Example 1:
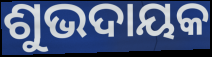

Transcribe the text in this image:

ଶୁଭଦାୟକ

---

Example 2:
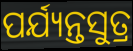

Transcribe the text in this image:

ପର୍ଯ୍ୟନ୍ତସୁତ୍ର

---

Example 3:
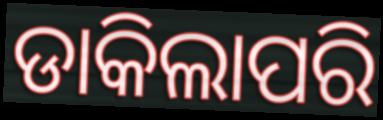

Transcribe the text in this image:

ଡାକିଲାପରି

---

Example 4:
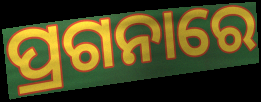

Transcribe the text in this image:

ପ୍ରଗନାରେ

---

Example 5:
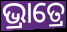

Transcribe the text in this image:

ଭ୍ରାତ୍ରେ